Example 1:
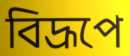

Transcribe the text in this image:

বিদ্রূপে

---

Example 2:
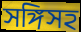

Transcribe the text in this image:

সঙ্গিসহ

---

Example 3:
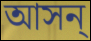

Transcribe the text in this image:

আসন্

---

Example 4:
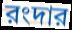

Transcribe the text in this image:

রংদার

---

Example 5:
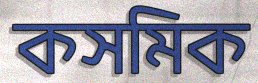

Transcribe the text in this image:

কসমিক